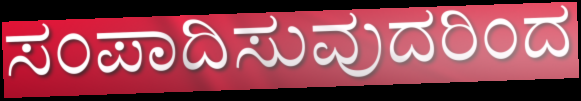
ಸಂಪಾದಿಸುವುದರಿಂದ